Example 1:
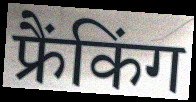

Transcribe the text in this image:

फ्रैंकिंग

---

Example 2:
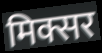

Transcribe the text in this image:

मिक्सर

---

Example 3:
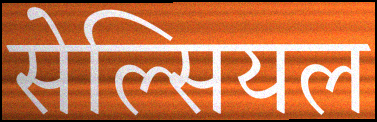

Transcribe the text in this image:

सेल्सियल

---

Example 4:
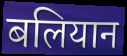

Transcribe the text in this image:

बलियान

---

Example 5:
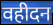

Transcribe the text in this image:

वहीदन